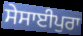
ਸੇਸਾਈਪੁਰਾ